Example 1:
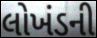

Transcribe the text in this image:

લોખંડની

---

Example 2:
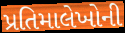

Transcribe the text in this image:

પ્રતિમાલેખોની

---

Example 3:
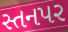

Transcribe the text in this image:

સ્તનપર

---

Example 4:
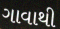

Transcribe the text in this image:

ગાવાથી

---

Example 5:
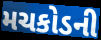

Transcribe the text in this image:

મચકોડની